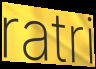
ratri